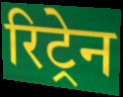
रिट्रेन